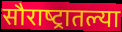
सौराष्ट्रातल्या